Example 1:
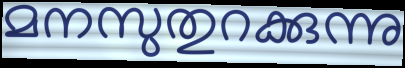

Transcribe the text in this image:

മനസുതുറക്കുന്നു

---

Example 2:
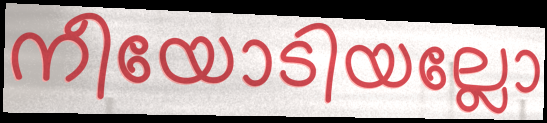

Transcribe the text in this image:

നീയോടിയല്ലോ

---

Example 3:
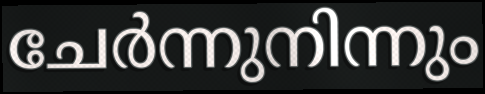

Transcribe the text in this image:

ചേർന്നുനിന്നും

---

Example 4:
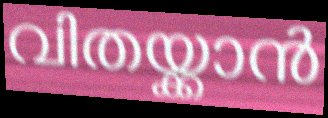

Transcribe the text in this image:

വിതയ്ക്കാൻ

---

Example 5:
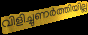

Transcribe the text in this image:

വിളിച്ചുണർത്തിയില്ല